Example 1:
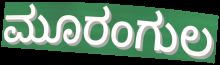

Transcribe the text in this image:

ಮೂರಂಗುಲ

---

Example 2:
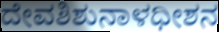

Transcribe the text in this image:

ದೇವಶಿಶುನಾಳಧೀಶನ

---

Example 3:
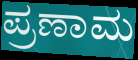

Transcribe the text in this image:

ಪ್ರಣಾಮ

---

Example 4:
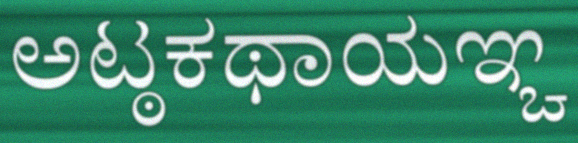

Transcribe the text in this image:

ಅಟ್ಠಕಥಾಯಞ್ಚ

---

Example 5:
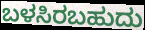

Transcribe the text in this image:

ಬಳಸಿರಬಹುದು